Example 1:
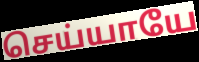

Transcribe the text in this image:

செய்யாயே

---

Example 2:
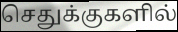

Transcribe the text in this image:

செதுக்குகளில்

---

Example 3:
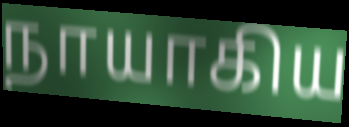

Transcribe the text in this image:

நாயாகிய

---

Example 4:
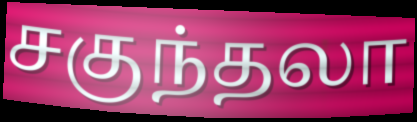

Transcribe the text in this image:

சகுந்தலா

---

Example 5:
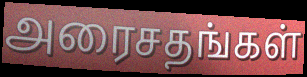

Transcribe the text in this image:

அரைசதங்கள்